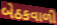
બેઠકવાળી